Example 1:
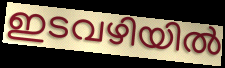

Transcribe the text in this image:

ഇടവഴിയിൽ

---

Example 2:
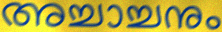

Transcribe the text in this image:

അച്ചാച്ചനും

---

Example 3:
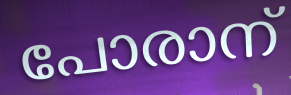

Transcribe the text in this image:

പോരാന്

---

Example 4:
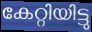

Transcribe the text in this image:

കേറ്റിയിട്ടു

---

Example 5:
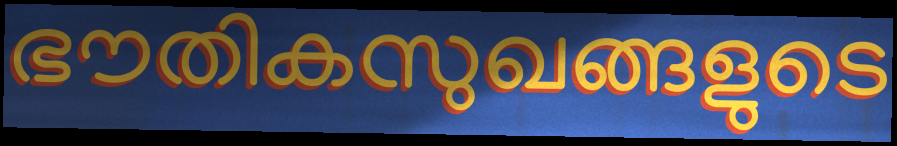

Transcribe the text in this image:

ഭൗതികസുഖങ്ങളുടെ